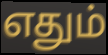
எதும்